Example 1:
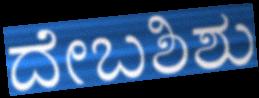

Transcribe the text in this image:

ದೇಬಶಿಶು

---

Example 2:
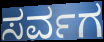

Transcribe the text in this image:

ಸರ್ವಗ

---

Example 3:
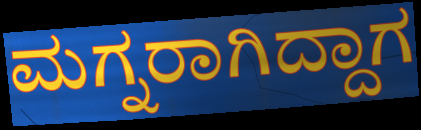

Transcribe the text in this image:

ಮಗ್ನರಾಗಿದ್ದಾಗ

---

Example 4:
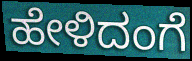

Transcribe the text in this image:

ಹೇಳಿದಂಗೆ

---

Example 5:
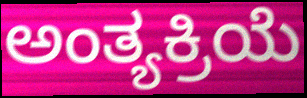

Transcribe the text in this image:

ಅಂತ್ಯಕ್ರಿಯೆ